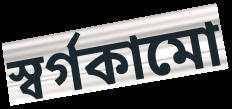
স্বর্গকামো